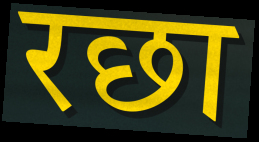
रछा